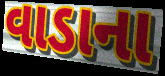
વાડાના